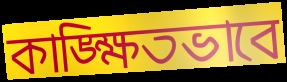
কাঙ্ক্ষিতভাবে